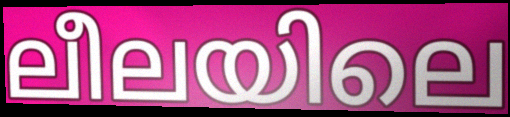
ലീലയിലെ